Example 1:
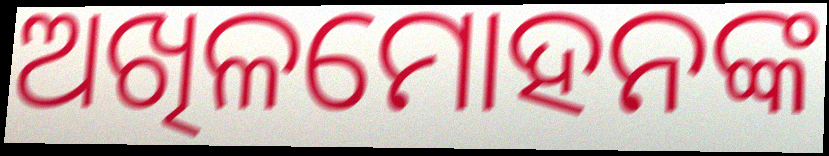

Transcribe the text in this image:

ଅଖିଳମୋହନଙ୍କ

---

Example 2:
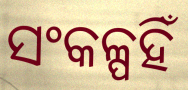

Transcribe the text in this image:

ସଂକଳ୍ପହିଁ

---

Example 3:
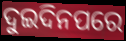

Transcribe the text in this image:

ଦୁଇଦିନପରେ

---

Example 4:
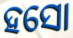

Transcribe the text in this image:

ହସୋ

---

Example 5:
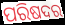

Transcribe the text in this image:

ପରିଷଦର